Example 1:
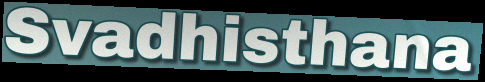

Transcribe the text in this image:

Svadhisthana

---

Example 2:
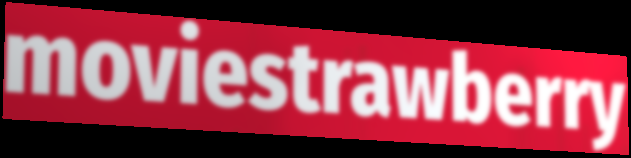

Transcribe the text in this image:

moviestrawberry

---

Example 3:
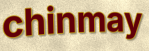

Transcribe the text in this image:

chinmay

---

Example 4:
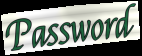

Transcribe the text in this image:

Password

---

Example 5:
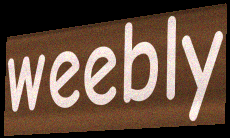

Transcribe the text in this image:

weebly